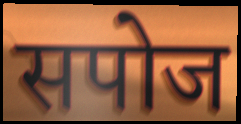
सपोज